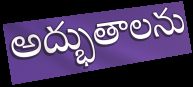
అద్భుతాలను